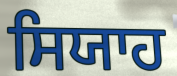
ਸਿਯਾਹ